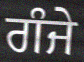
ਗੰਜੇ